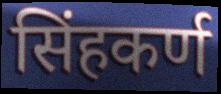
सिंहकर्ण